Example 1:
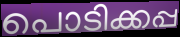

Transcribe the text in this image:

പൊടിക്കപ്പ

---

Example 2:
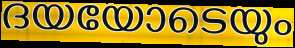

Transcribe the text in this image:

ദയയോടെയും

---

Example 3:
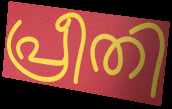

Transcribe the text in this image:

പ്രീതി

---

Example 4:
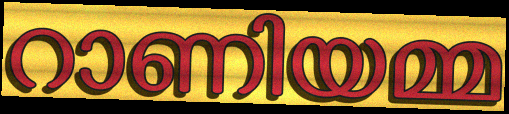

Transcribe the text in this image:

റാണിയമ്മ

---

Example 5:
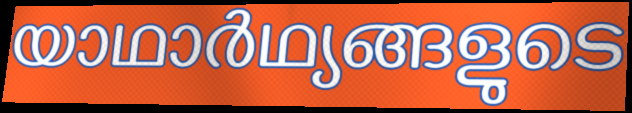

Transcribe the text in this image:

യാഥാർഥ്യങ്ങളുടെ